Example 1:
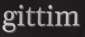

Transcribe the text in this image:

gittim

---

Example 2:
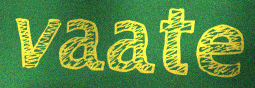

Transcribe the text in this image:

vaate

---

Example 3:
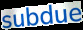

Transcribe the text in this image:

subdue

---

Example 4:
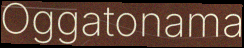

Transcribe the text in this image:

Oggatonama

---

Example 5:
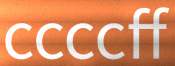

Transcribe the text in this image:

ccccff